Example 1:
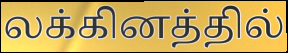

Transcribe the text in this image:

லக்கினத்தில்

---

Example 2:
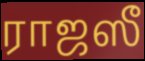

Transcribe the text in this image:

ராஜஸீ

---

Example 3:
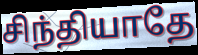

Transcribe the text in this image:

சிந்தியாதே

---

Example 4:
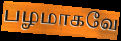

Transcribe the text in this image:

பழமாகவே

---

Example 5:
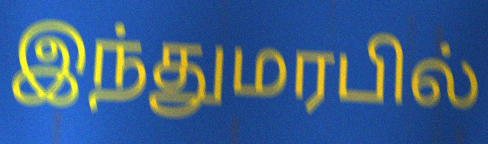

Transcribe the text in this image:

இந்துமரபில்